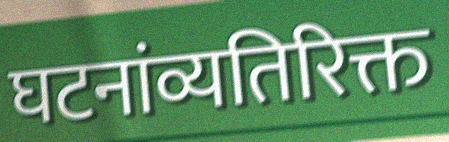
घटनांव्यतिरिक्त